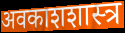
अवकाशशास्त्र